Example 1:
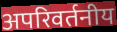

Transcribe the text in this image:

अपरिवर्तनीय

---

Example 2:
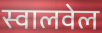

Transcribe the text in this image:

स्वालवेल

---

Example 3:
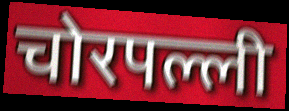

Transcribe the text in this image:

चोरपल्ली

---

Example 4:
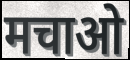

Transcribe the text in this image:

मचाओ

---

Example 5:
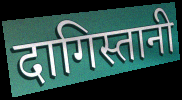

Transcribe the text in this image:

दागिस्तानी